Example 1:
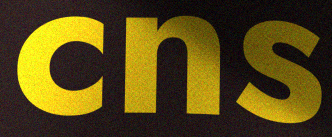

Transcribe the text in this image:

cns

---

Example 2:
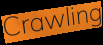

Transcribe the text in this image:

Crawling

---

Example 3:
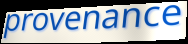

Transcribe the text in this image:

provenance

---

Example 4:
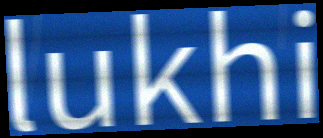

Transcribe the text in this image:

lukhi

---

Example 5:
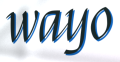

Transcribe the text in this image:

wayo